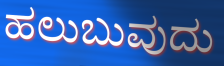
ಹಲುಬುವುದು